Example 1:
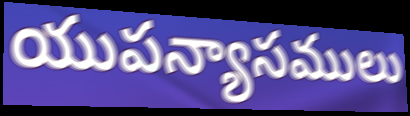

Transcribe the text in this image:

యుపన్యాసములు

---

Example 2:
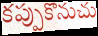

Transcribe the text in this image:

కప్పుకొనుచు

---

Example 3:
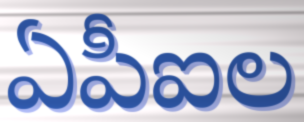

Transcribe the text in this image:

ఏపీఐల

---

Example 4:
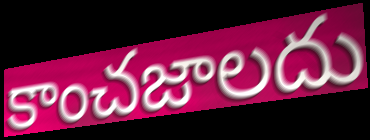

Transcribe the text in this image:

కాంచజాలదు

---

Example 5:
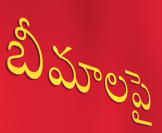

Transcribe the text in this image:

బీమాలపై